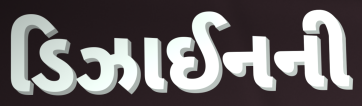
ડિઝાઈનની